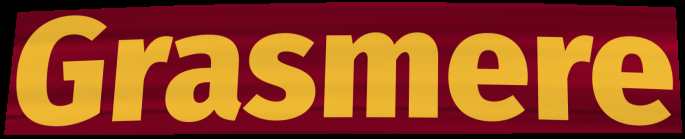
Grasmere